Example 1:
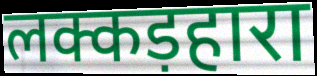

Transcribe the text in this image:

लक्कड़हारा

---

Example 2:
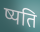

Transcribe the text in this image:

ष्यति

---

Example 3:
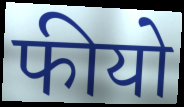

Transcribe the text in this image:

फीयो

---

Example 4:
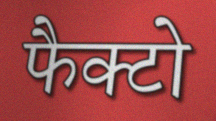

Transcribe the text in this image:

फैक्टो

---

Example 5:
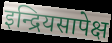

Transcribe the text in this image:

इन्द्रियसापेक्ष